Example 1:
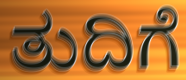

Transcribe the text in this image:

ತುದಿಗೆ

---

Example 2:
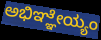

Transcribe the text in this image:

ಅಭಿಞ್ಞೇಯ್ಯಂ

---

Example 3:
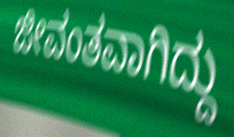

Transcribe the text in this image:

ಜೀವಂತವಾಗಿದ್ದು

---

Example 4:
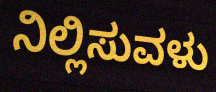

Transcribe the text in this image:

ನಿಲ್ಲಿಸುವಳು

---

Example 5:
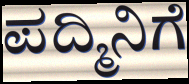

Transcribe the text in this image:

ಪದ್ಮಿನಿಗೆ